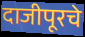
दाजीपूरचे